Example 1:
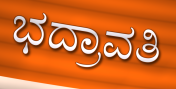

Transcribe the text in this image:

ಭದ್ರಾವತಿ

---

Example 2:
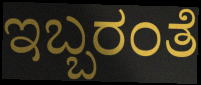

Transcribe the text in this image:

ಇಬ್ಬರಂತೆ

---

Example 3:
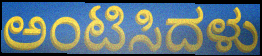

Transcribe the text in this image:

ಅಂಟಿಸಿದಳು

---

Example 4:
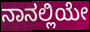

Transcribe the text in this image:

ನಾನಲ್ಲಿಯೇ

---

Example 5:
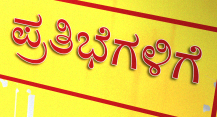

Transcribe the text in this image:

ಪ್ರತಿಭೆಗಳಿಗೆ